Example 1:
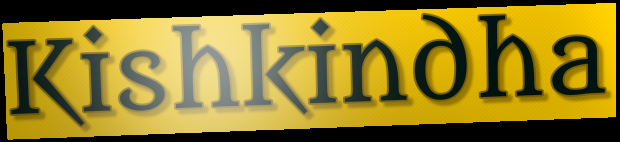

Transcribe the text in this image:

Kishkindha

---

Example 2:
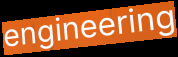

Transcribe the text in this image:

engineering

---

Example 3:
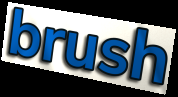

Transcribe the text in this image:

brush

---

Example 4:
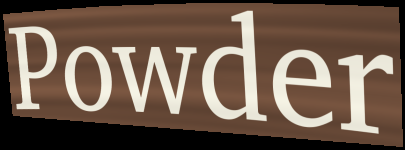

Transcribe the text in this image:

Powder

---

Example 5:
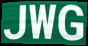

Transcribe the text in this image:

JWG